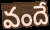
వందే